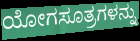
ಯೋಗಸೂತ್ರಗಳನ್ನು